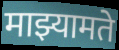
माझ्यामते